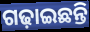
ଗଢ଼ାଇଛନ୍ତି